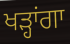
ਖੜ੍ਹਾਂਗਾ